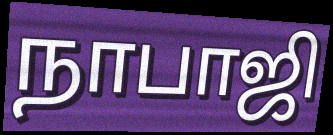
நாபாஜி